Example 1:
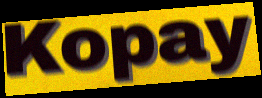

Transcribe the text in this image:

Kopay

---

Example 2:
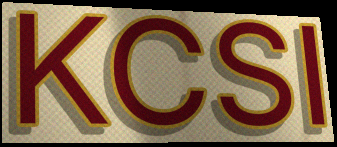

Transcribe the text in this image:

KCSI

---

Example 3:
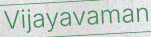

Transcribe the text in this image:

Vijayavaman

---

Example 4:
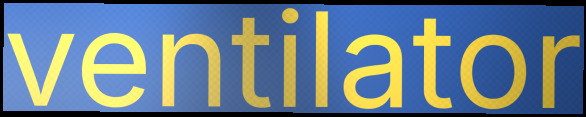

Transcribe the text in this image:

ventilator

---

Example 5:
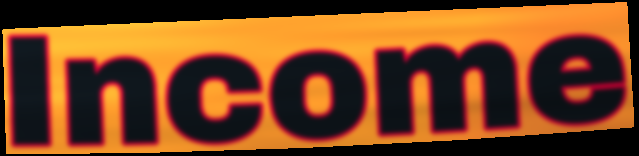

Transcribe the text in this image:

Income